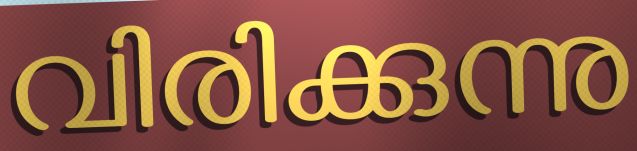
വിരിക്കുന്നു